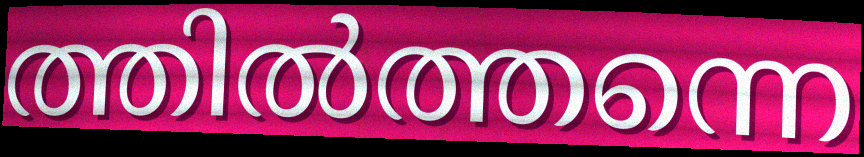
ത്തിൽത്തന്നെ